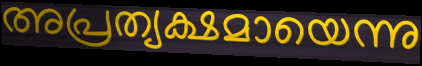
അപ്രത്യക്ഷമായെന്നു